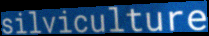
silviculture